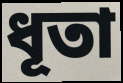
ধূতা